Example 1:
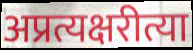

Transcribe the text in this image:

अप्रत्यक्षरीत्या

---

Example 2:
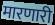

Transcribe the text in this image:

मारणारी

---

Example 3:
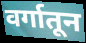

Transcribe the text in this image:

वर्गातून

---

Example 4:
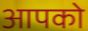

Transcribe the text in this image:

आपको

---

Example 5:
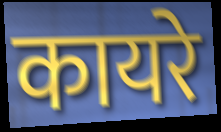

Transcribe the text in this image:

कायरे